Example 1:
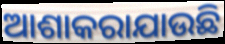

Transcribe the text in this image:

ଆଶାକରାଯାଉଛି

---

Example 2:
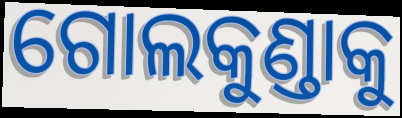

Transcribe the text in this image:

ଗୋଲକୁଣ୍ଡାକୁ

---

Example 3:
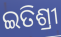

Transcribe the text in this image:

ଇତିଶ୍ରୀ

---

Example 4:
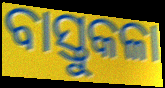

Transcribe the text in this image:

ବାସ୍ତୁକଳା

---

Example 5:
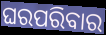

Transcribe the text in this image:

ଘରପରିବାର